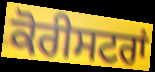
ਕੋਰੀਸਟਰਾਂ